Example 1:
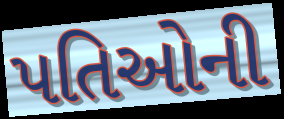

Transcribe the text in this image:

પતિઓની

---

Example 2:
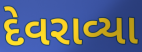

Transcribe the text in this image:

દેવરાવ્યા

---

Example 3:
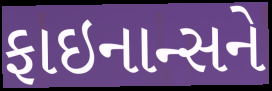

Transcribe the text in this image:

ફાઇનાન્સને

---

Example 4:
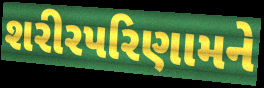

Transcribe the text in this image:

શરીરપરિણામને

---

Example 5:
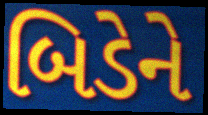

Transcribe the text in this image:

બિડેને